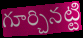
గూర్చినట్టి